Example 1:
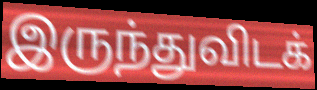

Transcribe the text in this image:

இருந்துவிடக்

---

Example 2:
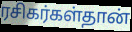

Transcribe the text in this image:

ரசிகர்கள்தான்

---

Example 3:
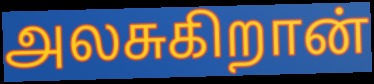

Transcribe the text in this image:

அலசுகிறான்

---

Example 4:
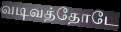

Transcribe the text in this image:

வடிவத்தோடே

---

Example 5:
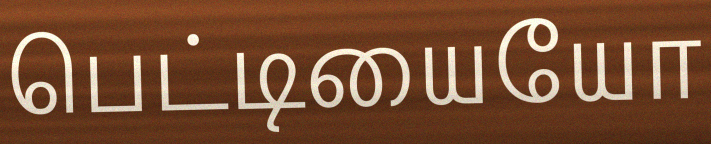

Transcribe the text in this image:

பெட்டியையோ